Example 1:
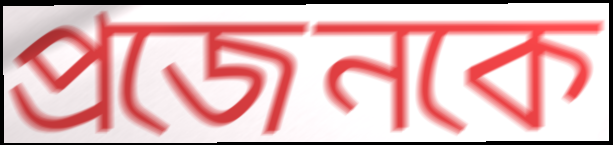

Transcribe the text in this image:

প্রজেনকে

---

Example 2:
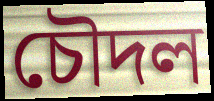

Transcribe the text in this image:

চৌদল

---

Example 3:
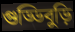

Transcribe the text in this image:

গুড্ডিবুড়ি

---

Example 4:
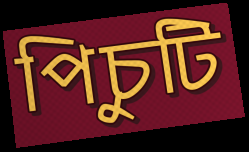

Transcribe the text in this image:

পিচুটি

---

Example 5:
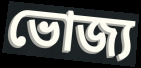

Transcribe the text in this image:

ভোজ্য